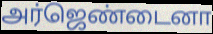
அர்ஜெண்டைனா